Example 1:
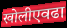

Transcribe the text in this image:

खोलीएवढा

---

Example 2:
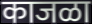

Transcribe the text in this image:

काजळा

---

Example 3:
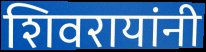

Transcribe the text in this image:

शिवरायांनी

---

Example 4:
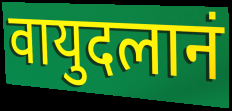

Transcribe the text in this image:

वायुदलानं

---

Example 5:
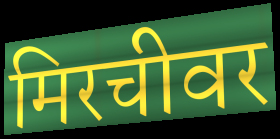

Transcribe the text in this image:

मिरचीवर